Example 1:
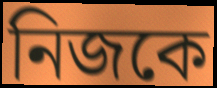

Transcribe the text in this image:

নিজকে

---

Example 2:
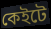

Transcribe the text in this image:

কেইটে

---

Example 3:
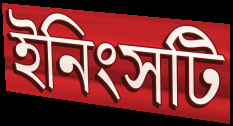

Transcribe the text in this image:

ইনিংসটি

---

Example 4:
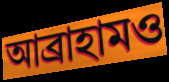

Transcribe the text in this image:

আব্রাহামও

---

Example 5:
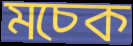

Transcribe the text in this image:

মচ্কে